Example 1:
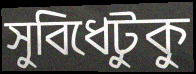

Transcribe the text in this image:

সুবিধেটুকু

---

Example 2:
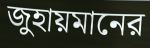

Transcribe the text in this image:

জুহায়মানের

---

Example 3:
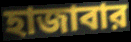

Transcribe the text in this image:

হাজাবার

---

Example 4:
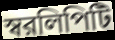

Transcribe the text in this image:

স্বরলিপিটি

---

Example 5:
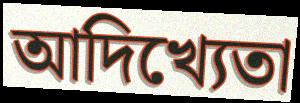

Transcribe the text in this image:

আদিখ্যেতা